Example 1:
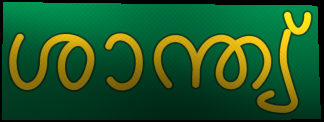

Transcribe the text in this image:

ശാന്ത്യ്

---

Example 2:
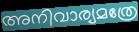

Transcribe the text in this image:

അനിവാര്യമത്രേ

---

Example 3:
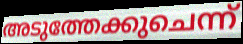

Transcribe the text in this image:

അടുത്തേക്കുചെന്ന്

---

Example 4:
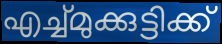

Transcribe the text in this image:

എച്ച്മുക്കുട്ടിക്ക്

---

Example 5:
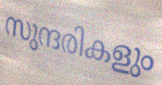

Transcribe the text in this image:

സുന്ദരികളും